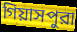
গিয়াসপুরা